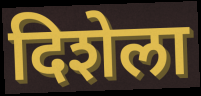
दिशेला